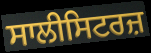
ਸਾਲੀਸਿਟਰਜ਼